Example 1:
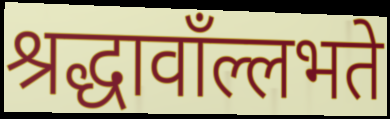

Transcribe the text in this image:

श्रद्धावाँल्लभते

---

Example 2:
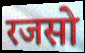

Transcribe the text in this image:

रजसो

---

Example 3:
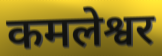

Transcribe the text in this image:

कमलेश्वर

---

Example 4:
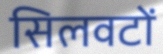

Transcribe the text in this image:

सिलवटों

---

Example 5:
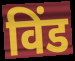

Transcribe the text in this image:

विंड